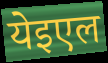
येइएल